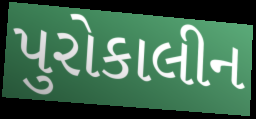
પુરોકાલીન